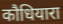
कौधियारा